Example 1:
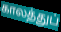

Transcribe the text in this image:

காலத்துப்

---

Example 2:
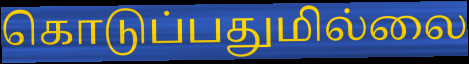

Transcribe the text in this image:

கொடுப்பதுமில்லை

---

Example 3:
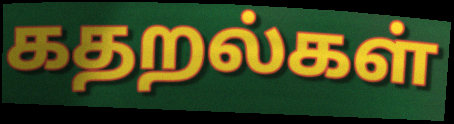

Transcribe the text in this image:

கதறல்கள்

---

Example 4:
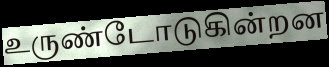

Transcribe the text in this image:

உருண்டோடுகின்றன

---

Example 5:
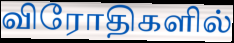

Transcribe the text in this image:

விரோதிகளில்